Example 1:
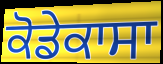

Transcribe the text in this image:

ਕੋਡੇਕਾਸਾ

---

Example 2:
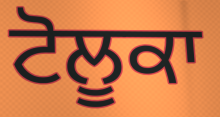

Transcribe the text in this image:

ਟੋਲੂਕਾ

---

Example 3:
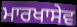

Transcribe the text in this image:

ਮਾਰਖਾਸੇਵ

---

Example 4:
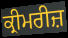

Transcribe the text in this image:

ਕ੍ਰੀਮਰੀਜ਼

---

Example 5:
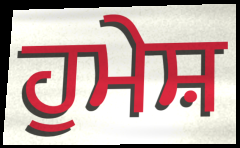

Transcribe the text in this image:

ਹੁਮੇਸ਼